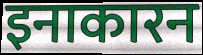
इनाकारन